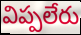
విప్పలేరు